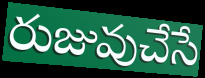
రుజువుచేసే